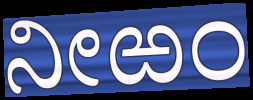
ನೀಱಂ